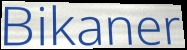
Bikaner